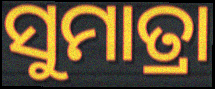
ସୁମାତ୍ରା